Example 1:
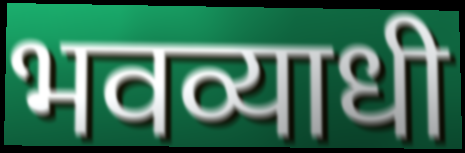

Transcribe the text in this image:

भवव्याधी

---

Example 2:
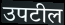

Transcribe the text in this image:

उपटील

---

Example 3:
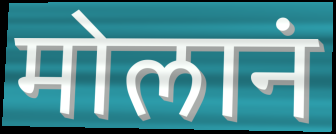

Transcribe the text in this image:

मोलानं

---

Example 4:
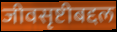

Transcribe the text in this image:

जीवसृष्टीबद्दल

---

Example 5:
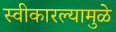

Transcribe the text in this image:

स्वीकारल्यामुळे